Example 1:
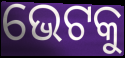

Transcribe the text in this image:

ଭେଟକୁ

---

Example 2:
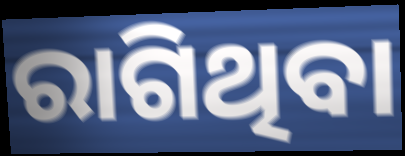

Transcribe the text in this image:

ରାଗିଥିବା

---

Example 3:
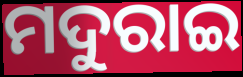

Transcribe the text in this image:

ମଦୁରାଇ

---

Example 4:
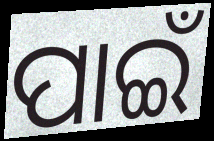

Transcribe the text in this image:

ପାଇଁ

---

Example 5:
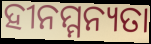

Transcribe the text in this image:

ହୀନମ୍ମନ୍ୟତା